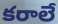
కరాలే